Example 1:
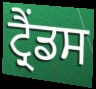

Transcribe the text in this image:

ਟ੍ਰੈਂਡਸ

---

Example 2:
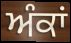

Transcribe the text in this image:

ਅੰਕਾਂ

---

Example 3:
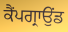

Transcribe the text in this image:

ਕੈਂਪਗ੍ਰਾਉਂਡ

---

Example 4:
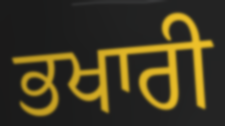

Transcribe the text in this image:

ਭਖਾਰੀ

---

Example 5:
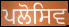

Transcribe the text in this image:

ਪਲੋਸਿਵ